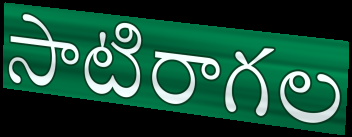
సాటిరాగల